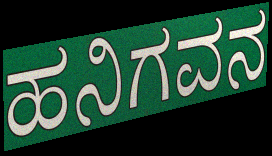
ಹನಿಗವನ